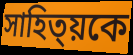
সাহিত্য়কে